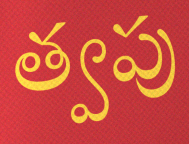
త్వపు